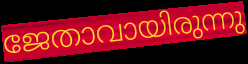
ജേതാവായിരുന്നു